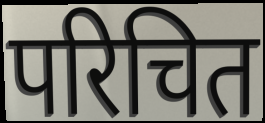
परिचित